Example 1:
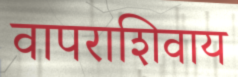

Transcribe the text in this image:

वापराशिवाय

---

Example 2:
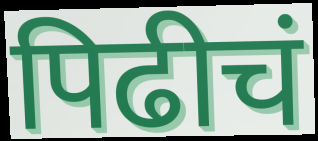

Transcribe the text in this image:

पिढीचं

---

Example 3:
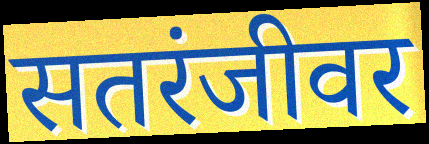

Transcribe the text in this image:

सतरंजीवर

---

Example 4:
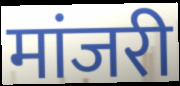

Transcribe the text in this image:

मांजरी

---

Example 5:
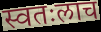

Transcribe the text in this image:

स्वतःलाच